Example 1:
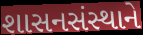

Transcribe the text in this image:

શાસનસંસ્થાને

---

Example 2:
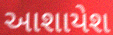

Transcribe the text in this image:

આશાયેશ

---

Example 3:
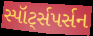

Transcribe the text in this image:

સ્પૉર્ટ્સપર્સન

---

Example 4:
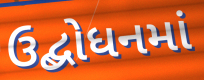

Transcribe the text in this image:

ઉદ્બોધનમાં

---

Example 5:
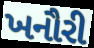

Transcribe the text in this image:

ખનૌરી